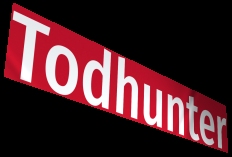
Todhunter